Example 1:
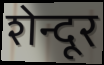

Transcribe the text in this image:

शेन्दूर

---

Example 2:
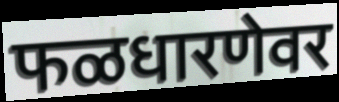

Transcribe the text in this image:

फळधारणेवर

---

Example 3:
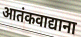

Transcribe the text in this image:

आतंकवाद्याना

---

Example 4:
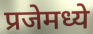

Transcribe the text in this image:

प्रजेमध्ये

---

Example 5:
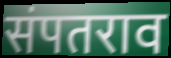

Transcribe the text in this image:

संपतराव